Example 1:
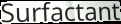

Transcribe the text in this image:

Surfactant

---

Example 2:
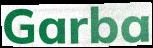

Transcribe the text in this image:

Garba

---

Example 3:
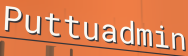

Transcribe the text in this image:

Puttuadmin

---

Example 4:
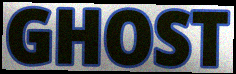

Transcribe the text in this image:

GHOST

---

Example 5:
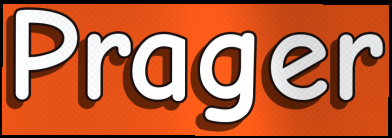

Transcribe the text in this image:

Prager